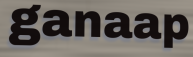
ganaap